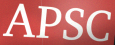
APSC